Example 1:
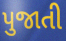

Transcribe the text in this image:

પુજાતી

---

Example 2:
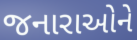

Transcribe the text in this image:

જનારાઓને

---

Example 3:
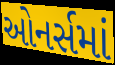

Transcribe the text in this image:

ઓનર્સમાં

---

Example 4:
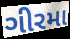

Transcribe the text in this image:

ગીરમા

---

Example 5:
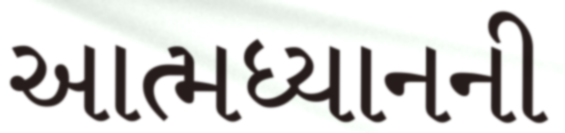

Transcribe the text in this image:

આત્મધ્યાનની